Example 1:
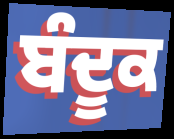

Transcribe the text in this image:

ਬੰਦੂਕ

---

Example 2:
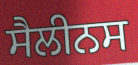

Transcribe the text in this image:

ਸੈਲੀਨਸ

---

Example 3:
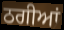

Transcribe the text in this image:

ਠਗੀਆਂ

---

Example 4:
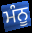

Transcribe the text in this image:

ਮੰਨੂ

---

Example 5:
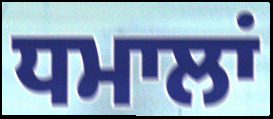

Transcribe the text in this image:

ਧਮਾਲਾਂ